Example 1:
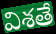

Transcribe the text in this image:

విశతే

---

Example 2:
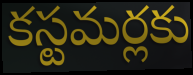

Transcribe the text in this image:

కస్టమర్లకు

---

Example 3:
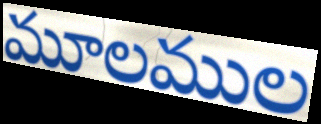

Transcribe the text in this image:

మూలముల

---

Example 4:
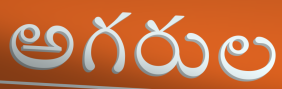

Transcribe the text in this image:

అగరుల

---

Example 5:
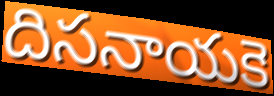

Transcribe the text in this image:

దిసనాయకె